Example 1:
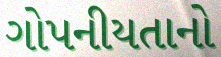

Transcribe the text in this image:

ગોપનીયતાનો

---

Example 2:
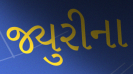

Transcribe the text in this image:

જ્યુરીના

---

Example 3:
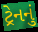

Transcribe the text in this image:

ટ્રેનનું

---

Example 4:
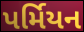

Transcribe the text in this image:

પર્મિયન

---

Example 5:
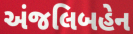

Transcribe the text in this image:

અંજલિબહેન